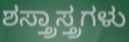
ಶಸ್ತ್ರಾಸ್ತ್ರಗಳು